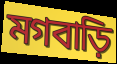
মগবাড়ি